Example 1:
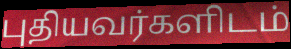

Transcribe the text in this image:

புதியவர்களிடம்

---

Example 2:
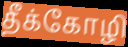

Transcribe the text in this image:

தீக்கோழி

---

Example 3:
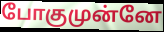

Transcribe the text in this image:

போகுமுன்னே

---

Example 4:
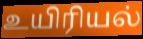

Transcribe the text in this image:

உயிரியல்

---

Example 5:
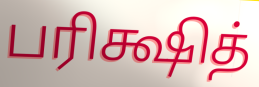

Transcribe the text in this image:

பரிக்ஷித்